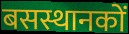
बसस्थानकों